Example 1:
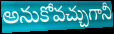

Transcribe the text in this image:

అనుకోవచ్చుగానీ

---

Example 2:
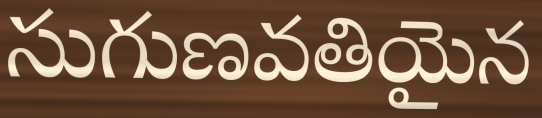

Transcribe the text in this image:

సుగుణవతియైన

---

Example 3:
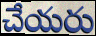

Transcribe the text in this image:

చేయరు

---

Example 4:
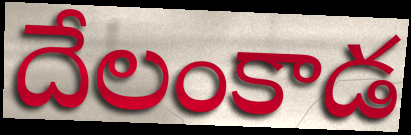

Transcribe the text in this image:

దేలంకాడ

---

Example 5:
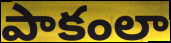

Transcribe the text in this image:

పాకంలా